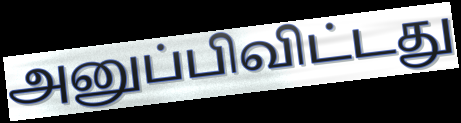
அனுப்பிவிட்டது